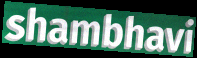
shambhavi